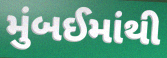
મુંબઈમાંથી